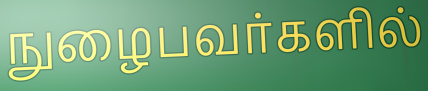
நுழைபவர்களில்